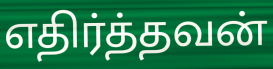
எதிர்த்தவன்